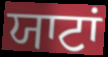
ਯਾਟਾਂ